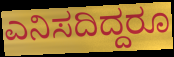
ಎನಿಸದಿದ್ದರೂ